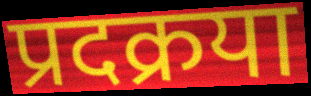
प्रदक्रया